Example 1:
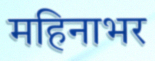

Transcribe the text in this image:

महिनाभर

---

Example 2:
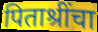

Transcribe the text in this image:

पिताश्रींचा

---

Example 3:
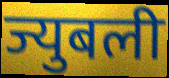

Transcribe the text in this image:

ज्युबली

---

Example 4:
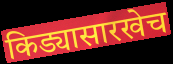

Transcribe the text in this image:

किड्यासारखेच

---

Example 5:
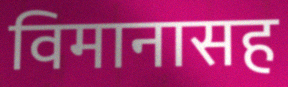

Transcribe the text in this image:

विमानासह